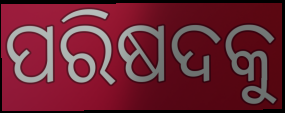
ପରିଷଦକୁ